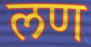
लण